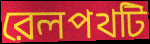
রেলপথটি